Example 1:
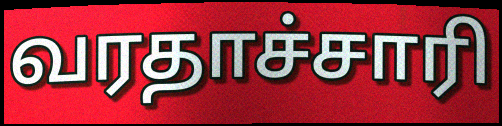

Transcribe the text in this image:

வரதாச்சாரி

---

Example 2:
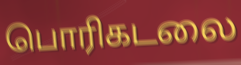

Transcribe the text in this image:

பொரிகடலை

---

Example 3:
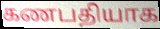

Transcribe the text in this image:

கணபதியாக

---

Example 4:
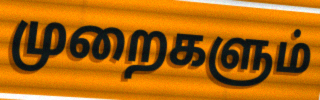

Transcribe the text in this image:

முறைகளும்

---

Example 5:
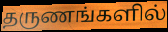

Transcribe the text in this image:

தருணங்களில்